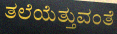
ತಲೆಯೆತ್ತುವಂತೆ